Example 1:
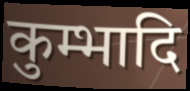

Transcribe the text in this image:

कुम्भादि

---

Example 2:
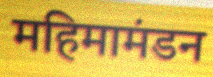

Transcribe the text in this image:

महिमामंडन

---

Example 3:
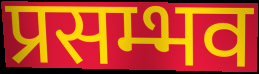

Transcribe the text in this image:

प्रसम्भव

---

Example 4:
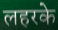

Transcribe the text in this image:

लहरके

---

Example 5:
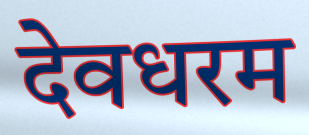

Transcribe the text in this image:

देवधरम